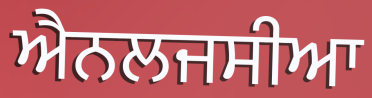
ਐਨਲਜਸੀਆ